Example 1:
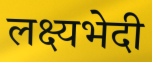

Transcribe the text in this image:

लक्ष्यभेदी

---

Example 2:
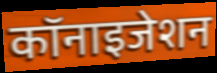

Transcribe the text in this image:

कॉनाइजेशन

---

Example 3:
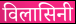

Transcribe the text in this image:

विलासिनी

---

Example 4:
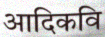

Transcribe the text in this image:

आदिकवि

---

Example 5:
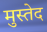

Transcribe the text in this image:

मुस्तेद